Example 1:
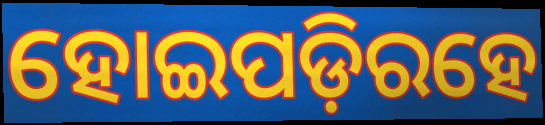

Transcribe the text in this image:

ହୋଇପଡ଼ିରହେ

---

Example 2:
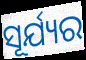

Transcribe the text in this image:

ସୂର୍ଯ୍ୟର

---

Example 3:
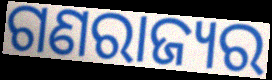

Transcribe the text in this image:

ଗଣରାଜ୍ୟର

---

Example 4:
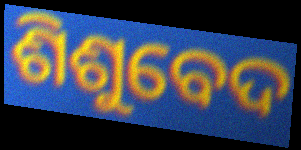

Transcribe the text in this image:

ଶିଶୁବେଦ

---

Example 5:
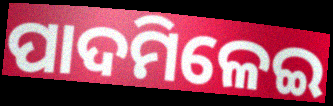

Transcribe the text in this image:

ପାଦମିଳେଇ